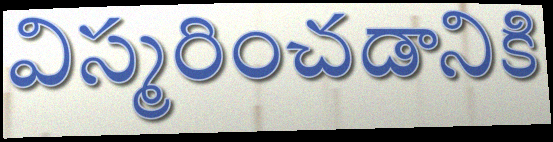
విస్మరించడానికి